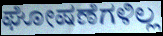
ಘೋಷಣೆಗಳಿಲ್ಲ